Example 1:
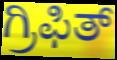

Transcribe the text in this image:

ಗ್ರಿಫಿತ್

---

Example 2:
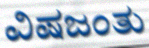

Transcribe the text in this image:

ವಿಷಜಂತು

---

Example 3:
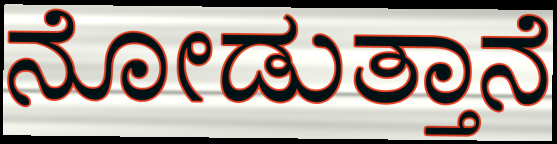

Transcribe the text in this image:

ನೋಡುತ್ತಾನೆ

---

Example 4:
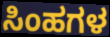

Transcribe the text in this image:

ಸಿಂಹಗಳ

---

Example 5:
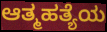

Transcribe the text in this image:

ಆತ್ಮಹತ್ಯೆಯ